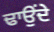
ਢਾਉਂਦੇ